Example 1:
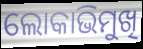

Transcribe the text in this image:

ଲୋକାଭିମୁଖି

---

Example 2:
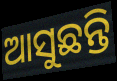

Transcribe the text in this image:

ଆସୁଛନ୍ତି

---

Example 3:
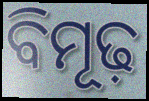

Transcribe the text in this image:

ବିମୂଢ଼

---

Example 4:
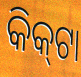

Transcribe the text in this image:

କିକ୍‍ଟା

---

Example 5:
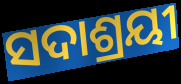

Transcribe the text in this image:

ସଦାଶ୍ରୟୀ